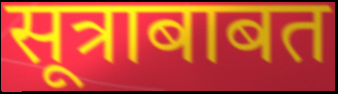
सूत्राबाबत